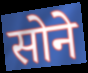
सोने